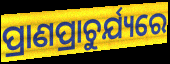
ପ୍ରାଣପ୍ରାଚୁର୍ଯ୍ୟରେ